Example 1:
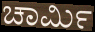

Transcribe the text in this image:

ಚಾರ್ಮಿ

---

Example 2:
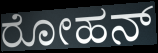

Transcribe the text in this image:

ರೋಹನ್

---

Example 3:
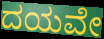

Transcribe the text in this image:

ದಯವೇ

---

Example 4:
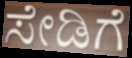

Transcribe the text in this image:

ಸೇಡಿಗೆ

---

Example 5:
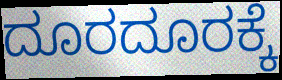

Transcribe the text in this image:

ದೂರದೂರಕ್ಕೆ